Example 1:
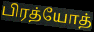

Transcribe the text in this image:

பிரத்யோத்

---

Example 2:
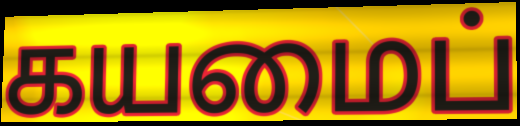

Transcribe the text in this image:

கயமைப்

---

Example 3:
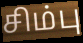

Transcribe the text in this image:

சிம்பு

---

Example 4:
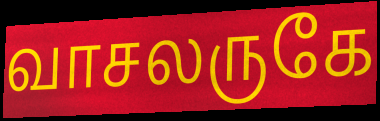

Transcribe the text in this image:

வாசலருகே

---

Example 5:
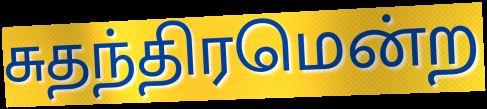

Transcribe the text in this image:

சுதந்திரமென்ற